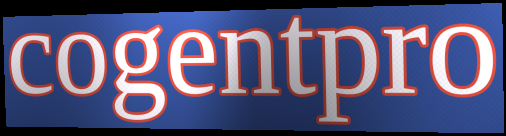
cogentpro